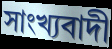
সাংখ্যবাদী